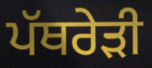
ਪੱਥਰੇੜੀ